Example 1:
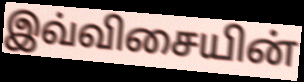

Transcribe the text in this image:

இவ்விசையின்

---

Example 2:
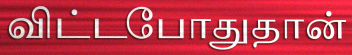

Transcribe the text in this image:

விட்டபோதுதான்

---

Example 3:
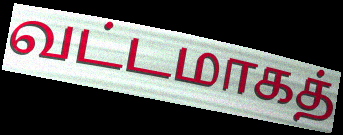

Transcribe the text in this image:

வட்டமாகத்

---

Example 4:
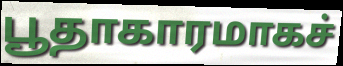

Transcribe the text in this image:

பூதாகாரமாகச்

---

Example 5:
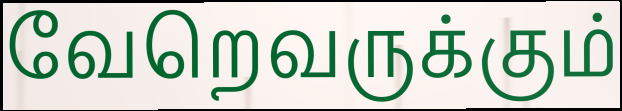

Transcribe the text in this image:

வேறெவருக்கும்